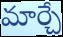
మార్చే